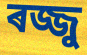
ৰজ্জু